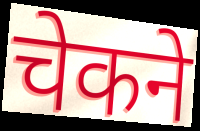
चेकने